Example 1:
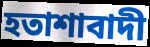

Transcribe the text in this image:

হতাশাবাদী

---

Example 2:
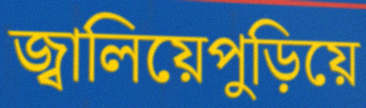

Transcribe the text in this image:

জ্বালিয়েপুড়িয়ে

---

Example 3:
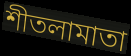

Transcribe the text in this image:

শীতলামাতা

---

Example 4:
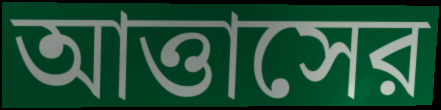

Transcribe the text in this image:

আত্তাসের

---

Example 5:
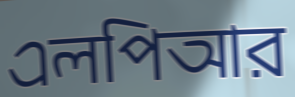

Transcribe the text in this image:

এলপিআর